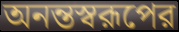
অনন্তস্বরূপের